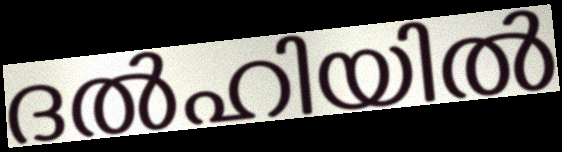
ദൽഹിയിൽ